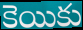
కెయికు